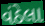
વંઠેલા